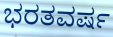
ಭರತವರ್ಷ